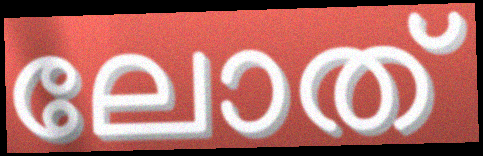
ലോത്